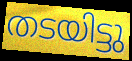
തടയിട്ടു